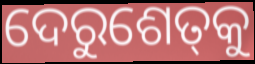
ଦେରୁଶେତ୍‌କୁ